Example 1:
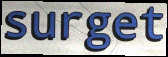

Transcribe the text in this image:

surget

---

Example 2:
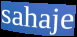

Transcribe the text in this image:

sahaje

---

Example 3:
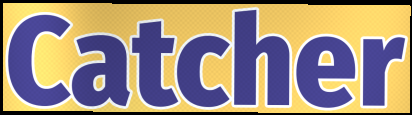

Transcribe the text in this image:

Catcher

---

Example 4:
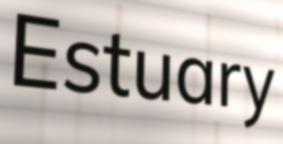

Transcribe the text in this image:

Estuary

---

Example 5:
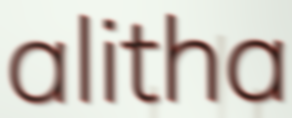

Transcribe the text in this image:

alitha